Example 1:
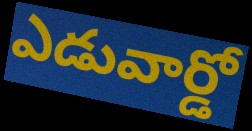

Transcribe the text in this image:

ఎడువార్డో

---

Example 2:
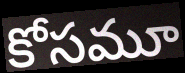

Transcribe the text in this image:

కోసమూ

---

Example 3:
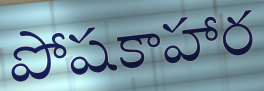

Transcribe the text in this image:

పోషకాహార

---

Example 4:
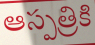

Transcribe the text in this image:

ఆస్పత్రికి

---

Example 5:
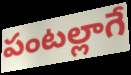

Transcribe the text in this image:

పంటల్లాగే